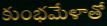
కుంభమేళాతో